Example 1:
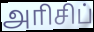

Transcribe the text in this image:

அரிசிப்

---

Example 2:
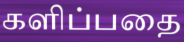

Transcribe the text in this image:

களிப்பதை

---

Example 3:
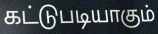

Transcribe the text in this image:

கட்டுபடியாகும்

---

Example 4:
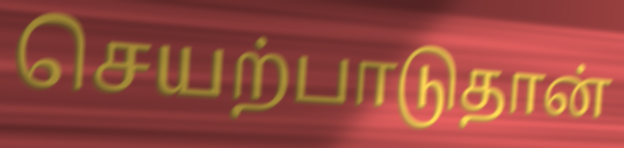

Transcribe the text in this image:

செயற்பாடுதான்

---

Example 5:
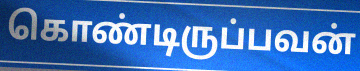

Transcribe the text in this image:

கொண்டிருப்பவன்